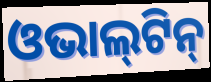
ଓଭାଲ୍‍ଟିନ୍